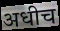
अधीच